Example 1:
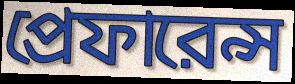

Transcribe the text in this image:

প্রেফারেন্স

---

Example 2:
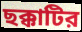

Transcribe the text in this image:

ছক্কাটির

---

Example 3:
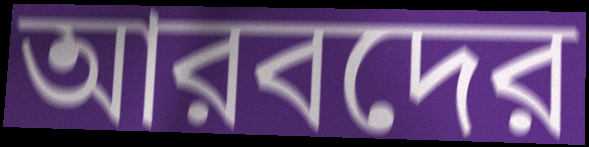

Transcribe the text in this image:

আরবদের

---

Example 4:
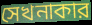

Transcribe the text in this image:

সেখনাকার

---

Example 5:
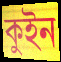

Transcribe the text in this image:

কুইন